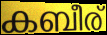
കബീര്